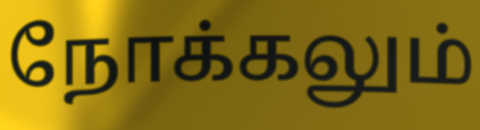
நோக்கலும்